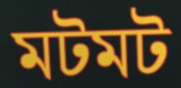
মটমট